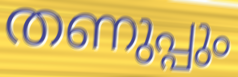
തണുപ്പും